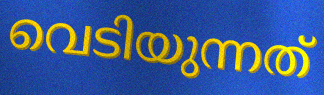
വെടിയുന്നത്